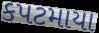
કપટમાયા